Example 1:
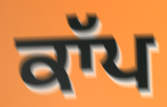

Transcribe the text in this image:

ਕਾੱਪ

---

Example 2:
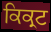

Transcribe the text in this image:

ਕਿਕ੍ਰਟ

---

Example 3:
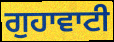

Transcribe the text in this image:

ਗੁਹਾਵਾਟੀ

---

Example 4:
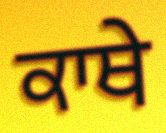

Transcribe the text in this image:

ਕਾਥੇ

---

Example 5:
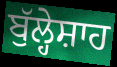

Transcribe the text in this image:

ਬੁੱਲ੍ਹੇਸ਼ਾਹ